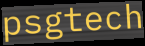
psgtech